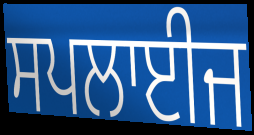
ਸਪਲਾਈਜ